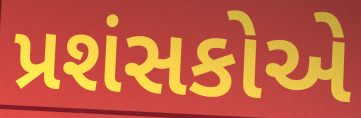
પ્રશંસકોએ